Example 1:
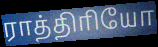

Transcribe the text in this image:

ராத்திரியோ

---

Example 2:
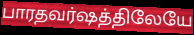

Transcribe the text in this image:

பாரதவர்ஷத்திலேயே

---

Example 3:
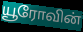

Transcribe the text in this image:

யூரோவின்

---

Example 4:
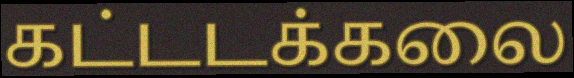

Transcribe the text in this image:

கட்டடக்கலை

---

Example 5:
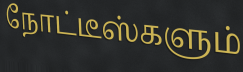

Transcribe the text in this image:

நோட்டீஸ்களும்